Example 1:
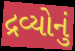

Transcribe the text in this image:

દ્રવ્યોનું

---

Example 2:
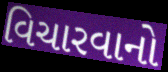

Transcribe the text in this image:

વિચારવાનો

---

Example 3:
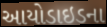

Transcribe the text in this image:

આયોડાઇડના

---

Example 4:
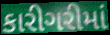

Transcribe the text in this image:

કારીગરીમાં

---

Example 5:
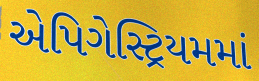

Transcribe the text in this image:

એપિગેસ્ટ્રિયમમાં